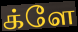
க்ளே